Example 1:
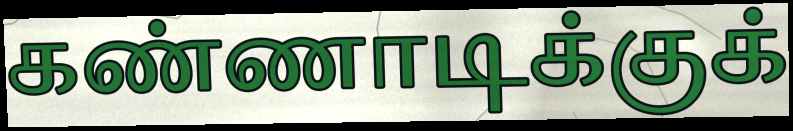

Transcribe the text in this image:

கண்ணாடிக்குக்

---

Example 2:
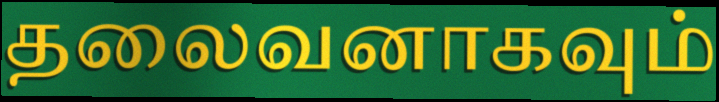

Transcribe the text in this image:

தலைவனாகவும்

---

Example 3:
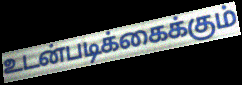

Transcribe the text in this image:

உடன்படிக்கைக்கும்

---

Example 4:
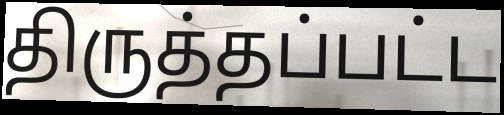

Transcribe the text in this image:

திருத்தப்பட்ட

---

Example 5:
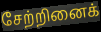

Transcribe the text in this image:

சேற்றினைக்